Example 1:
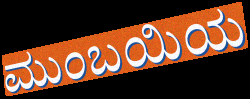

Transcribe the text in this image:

ಮುಂಬಯಿಯ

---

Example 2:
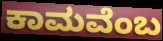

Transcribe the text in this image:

ಕಾಮವೆಂಬ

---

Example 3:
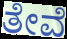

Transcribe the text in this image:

ತೇವೆ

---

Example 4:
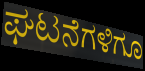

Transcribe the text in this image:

ಘಟನೆಗಳಿಗೂ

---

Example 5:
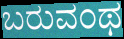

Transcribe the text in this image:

ಬರುವಂಥ